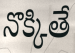
నొక్కితే